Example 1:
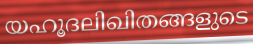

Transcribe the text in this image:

യഹൂദലിഖിതങ്ങളുടെ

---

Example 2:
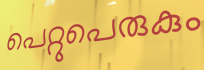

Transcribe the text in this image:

പെറ്റുപെരുകും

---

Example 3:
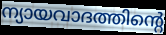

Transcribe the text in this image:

ന്യായവാദത്തിന്റെ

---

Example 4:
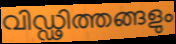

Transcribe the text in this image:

വിഡ്ഢിത്തങ്ങളും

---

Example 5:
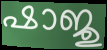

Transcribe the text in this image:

ഷാജു